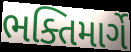
ભક્તિમાર્ગે